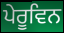
ਪੇਰੂਵਿਨ